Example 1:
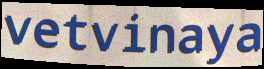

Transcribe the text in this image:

vetvinaya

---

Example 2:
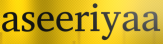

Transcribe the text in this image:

aseeriyaa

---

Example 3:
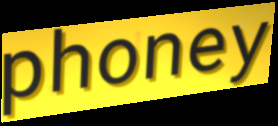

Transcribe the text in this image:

phoney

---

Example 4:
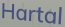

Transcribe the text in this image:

Hartal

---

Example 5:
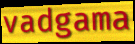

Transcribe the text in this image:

vadgama